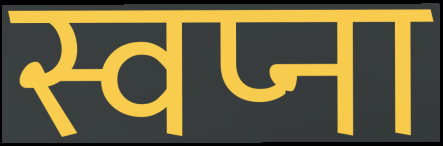
स्‍वप्‍ना